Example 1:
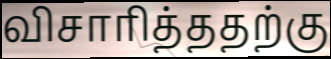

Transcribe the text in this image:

விசாரித்ததற்கு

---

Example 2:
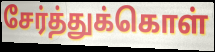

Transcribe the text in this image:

சேர்த்துக்கொள்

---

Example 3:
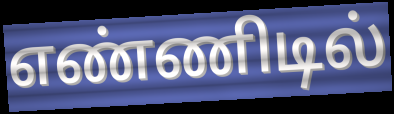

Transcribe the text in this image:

எண்ணிடில்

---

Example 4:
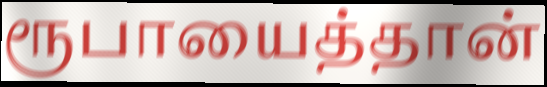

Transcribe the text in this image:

ரூபாயைத்தான்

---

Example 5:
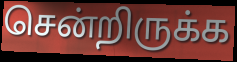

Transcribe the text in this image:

சென்றிருக்க